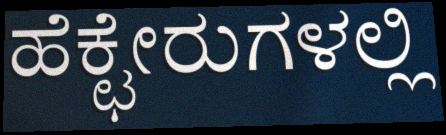
ಹೆಕ್ಟೇರುಗಳಲ್ಲಿ